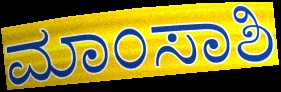
ಮಾಂಸಾಶಿ